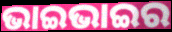
ଭାଇଭାଇର